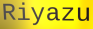
Riyazu